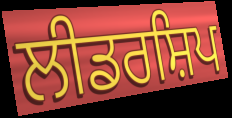
ਲੀਡਰਸ਼ਿਪ